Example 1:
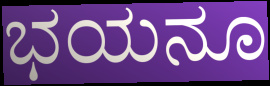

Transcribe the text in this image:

ಭಯನೂ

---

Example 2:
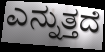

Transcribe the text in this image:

ಎನ್ನುತ್ತದೆ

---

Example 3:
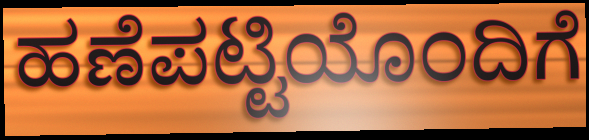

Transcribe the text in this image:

ಹಣೆಪಟ್ಟಿಯೊಂದಿಗೆ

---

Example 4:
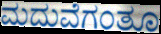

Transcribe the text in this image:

ಮದುವೆಗಂತೂ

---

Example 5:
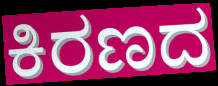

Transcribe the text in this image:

ಕಿರಣದ